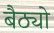
बैठ्यो